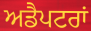
ਅਡੈਪਟਰਾਂ